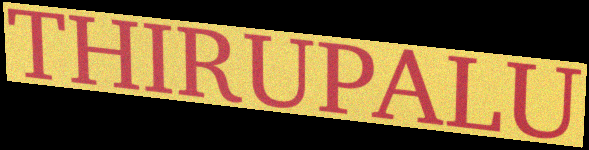
THIRUPALU